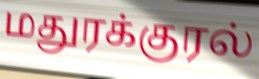
மதுரக்குரல்